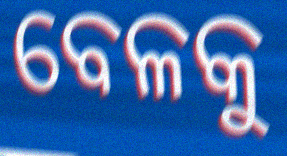
ବେଳକୁ